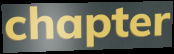
chapter